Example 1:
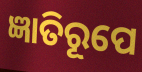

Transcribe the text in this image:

ଜ୍ଞାତିରୂପେ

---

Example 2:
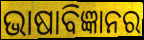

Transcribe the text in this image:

ଭାଷାବିଜ୍ଞାନର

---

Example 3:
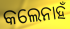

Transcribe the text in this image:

କଲେନାହଁ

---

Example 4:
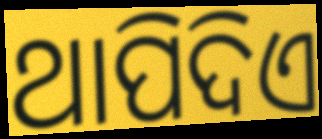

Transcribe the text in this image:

ଥାପିଦିଏ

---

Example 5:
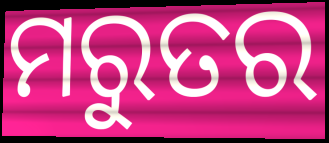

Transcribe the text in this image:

ମରୁତର